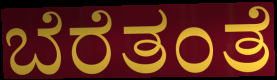
ಬೆರೆತಂತೆ